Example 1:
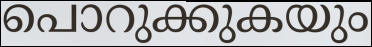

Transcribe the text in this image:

പൊറുക്കുകയും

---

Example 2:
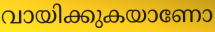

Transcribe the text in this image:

വായിക്കുകയാണോ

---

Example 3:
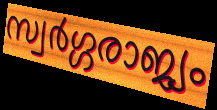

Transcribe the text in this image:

സ്വർഗ്ഗരാജ്യം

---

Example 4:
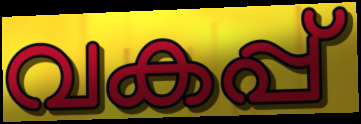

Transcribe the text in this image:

വകപ്പ്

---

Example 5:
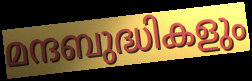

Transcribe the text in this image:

മന്ദബുദ്ധികളും